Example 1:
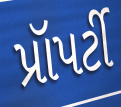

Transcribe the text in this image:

પ્રૉપર્ટી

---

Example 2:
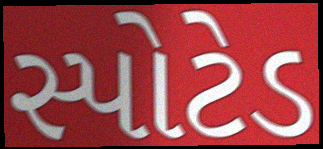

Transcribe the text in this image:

સ્પોટેડ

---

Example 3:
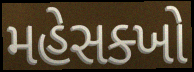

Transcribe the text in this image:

મહેસક્ખો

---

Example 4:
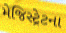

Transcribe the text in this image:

મેજિસ્ટ્રેટના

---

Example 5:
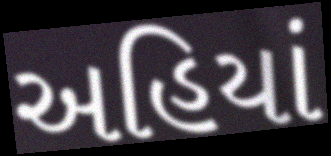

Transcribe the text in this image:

અહિયાં